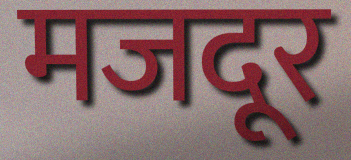
मजदूर